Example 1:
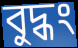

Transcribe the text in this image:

বুদ্ধং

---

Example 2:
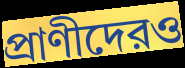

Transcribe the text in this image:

প্রাণীদেরও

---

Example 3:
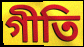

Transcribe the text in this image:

গীতি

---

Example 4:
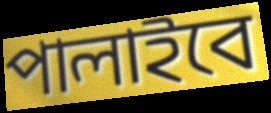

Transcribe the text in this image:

পালাইবে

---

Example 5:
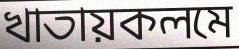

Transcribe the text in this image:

খাতায়কলমে